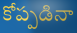
కోప్పడినా